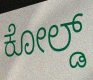
ಕೋಲ್ಡ್